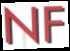
NF